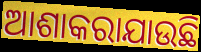
ଆଶାକରାଯାଉଛି